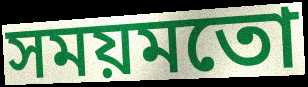
সময়মতো